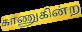
காணுகின்ற